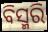
ବିସ୍ମରି